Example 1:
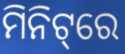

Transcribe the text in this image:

ମିନିଟ୍‌ରେ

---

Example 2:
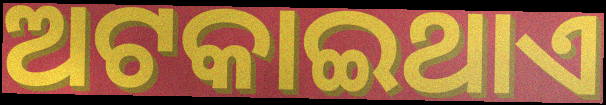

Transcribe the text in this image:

ଅଟକାଇଥାଏ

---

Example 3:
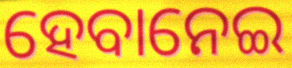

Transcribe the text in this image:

ହେବାନେଇ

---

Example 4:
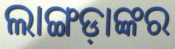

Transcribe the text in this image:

ଲାଙ୍ଗଡ଼ାଙ୍କର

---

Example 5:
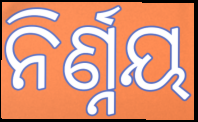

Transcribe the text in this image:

ନିର୍ଣ୍ନୟ